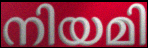
നിയമി